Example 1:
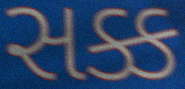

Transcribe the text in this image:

સક્ક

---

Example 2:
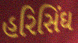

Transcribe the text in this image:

હરિસિંઘ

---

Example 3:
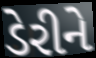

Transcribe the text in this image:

ડેરીને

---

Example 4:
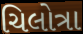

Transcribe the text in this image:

ચિલોત્રા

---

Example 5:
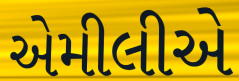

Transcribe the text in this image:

એમીલીએ